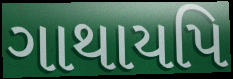
ગાથાયપિ